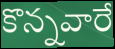
కొన్నవారే